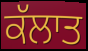
ਕੱਲਾਤ